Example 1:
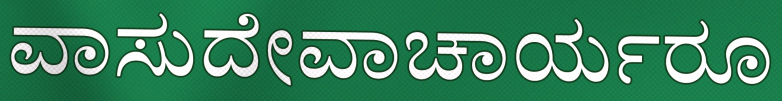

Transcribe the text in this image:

ವಾಸುದೇವಾಚಾರ್ಯರೂ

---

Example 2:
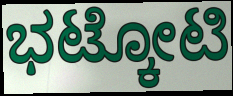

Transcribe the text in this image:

ಭಟ್ಕೋಟಿ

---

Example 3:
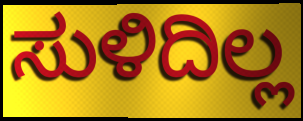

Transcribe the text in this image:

ಸುಳಿದಿಲ್ಲ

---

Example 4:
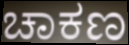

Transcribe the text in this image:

ಚಾಕಣ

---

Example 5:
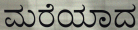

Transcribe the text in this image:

ಮರೆಯಾದ